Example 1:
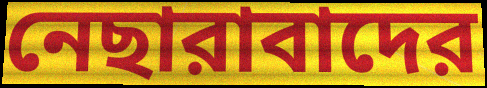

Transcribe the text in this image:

নেছারাবাদের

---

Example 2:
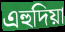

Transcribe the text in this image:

এহুদিয়া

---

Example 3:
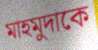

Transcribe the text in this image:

মাহমুদাকে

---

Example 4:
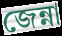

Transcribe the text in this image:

জেন্না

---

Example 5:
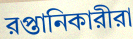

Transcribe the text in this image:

রপ্তানিকারীরা